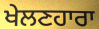
ਖੇਲਣਹਾਰਾ